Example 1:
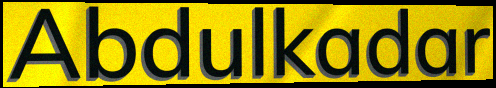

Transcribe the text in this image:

Abdulkadar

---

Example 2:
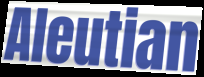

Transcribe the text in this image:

Aleutian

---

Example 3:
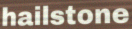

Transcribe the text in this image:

hailstone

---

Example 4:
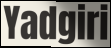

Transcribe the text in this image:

Yadgiri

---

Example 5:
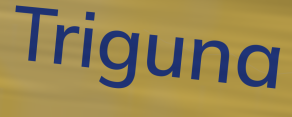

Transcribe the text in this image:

Triguna